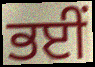
ਭਈਂ